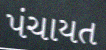
પંચાયત